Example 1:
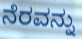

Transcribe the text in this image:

ನೆರವನ್ನು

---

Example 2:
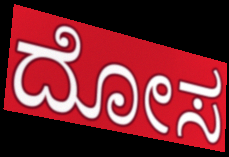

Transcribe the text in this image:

ದೋಸ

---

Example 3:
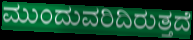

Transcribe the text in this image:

ಮುಂದುವರಿದಿರುತ್ತದೆ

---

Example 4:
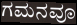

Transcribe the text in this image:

ಗಮನವೂ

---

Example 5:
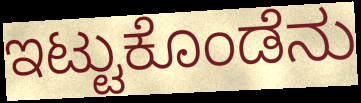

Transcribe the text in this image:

ಇಟ್ಟುಕೊಂಡೆನು